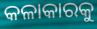
କଳାକାରକୁ